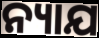
ନ୍ୟାଯ